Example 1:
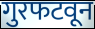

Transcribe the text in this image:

गुरफटवून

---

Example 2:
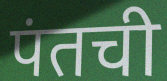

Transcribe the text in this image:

पंतची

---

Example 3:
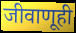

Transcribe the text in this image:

जीवाणूही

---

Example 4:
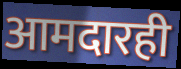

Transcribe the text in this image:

आमदारही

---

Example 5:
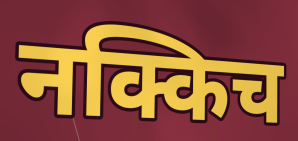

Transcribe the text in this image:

नक्किच